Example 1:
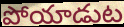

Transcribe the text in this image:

పోయాడుట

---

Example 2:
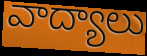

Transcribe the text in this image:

వాద్యాలు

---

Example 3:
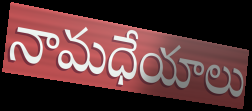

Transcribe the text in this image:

నామధేయాలు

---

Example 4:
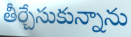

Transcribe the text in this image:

తీర్చేసుకున్నాను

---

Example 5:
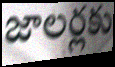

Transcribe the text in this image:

జాలర్లకు